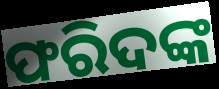
ଫରିଦଙ୍କ